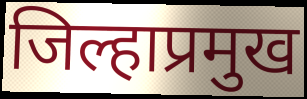
जिल्हाप्रमुख